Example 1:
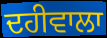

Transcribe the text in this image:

ਦਹੀਵਾਲਾ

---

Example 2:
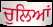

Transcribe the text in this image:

ਚੁਲਿਆਂ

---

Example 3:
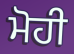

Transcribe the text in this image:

ਮੋਹੀ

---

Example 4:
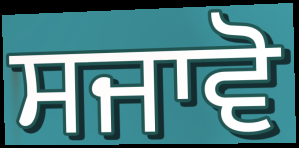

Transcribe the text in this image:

ਸਜਾਵੋ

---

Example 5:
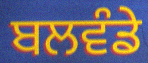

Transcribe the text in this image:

ਬਲਵੰਡੇ